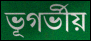
ভূগর্ভীয়